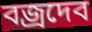
বজ্রদেব